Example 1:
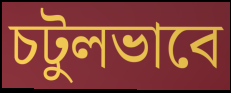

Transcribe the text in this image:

চটুলভাবে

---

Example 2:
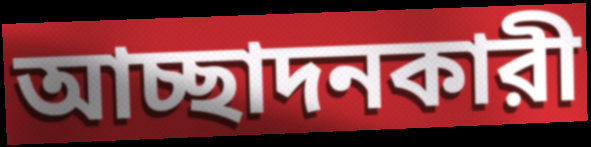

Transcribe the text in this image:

আচ্ছাদনকারী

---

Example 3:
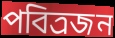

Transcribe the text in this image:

পবিত্রজন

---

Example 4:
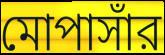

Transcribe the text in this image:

মোপাসাঁর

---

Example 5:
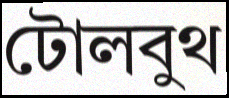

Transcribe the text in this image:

টোলবুথ